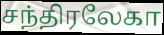
சந்திரலேகா